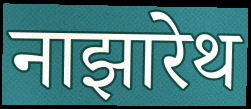
नाझारेथ